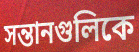
সন্তানগুলিকে